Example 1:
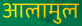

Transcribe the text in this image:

आलामुल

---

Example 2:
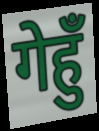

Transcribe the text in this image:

गेहुँ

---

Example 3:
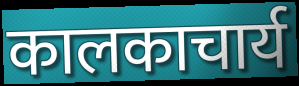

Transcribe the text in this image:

कालकाचार्य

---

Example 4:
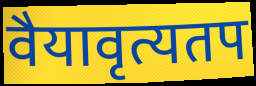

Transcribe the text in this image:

वैयावृत्यतप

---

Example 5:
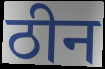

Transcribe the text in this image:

ठीन